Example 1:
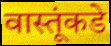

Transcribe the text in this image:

वास्तूंकडे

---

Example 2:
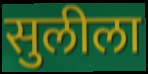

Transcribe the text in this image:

सुलीला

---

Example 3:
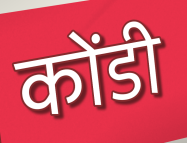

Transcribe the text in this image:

कोंडी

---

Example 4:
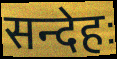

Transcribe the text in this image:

सन्देहः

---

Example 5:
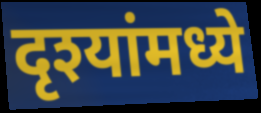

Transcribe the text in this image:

दृश्यांमध्ये